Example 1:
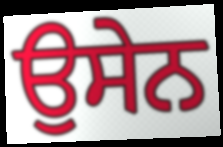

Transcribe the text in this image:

ਉਸੇਨ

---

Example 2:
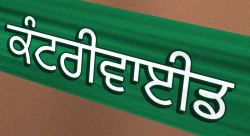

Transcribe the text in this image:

ਕੰਟਰੀਵਾਈਡ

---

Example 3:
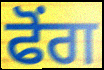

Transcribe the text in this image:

ਫੋਂਗ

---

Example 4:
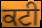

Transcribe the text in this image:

ਕਟੀ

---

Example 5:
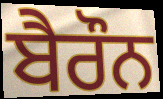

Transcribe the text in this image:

ਬੈਰੌਨ